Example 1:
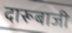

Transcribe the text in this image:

दारूबाजी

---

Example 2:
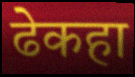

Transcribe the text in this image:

ढेकहा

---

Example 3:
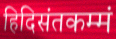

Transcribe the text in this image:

हिदिसंतकम्मं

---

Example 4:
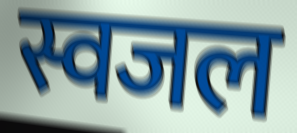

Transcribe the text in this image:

स्वजल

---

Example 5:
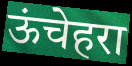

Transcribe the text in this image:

ऊंचेहरा